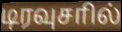
டிரவுசரில்